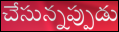
చేసున్నప్పుడు